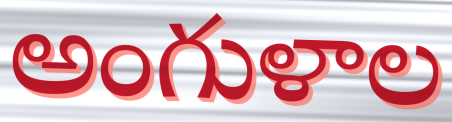
అంగుళాల